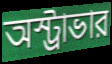
অস্ট্রাভার